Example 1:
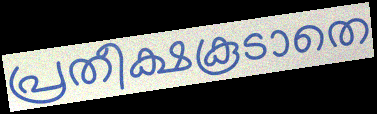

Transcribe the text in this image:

പ്രതീക്ഷകൂടാതെ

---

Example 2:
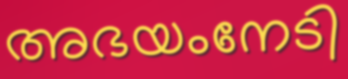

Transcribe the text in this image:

അഭയംനേടി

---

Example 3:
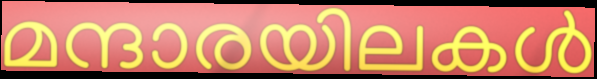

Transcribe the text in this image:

മന്ദാരയിലകൾ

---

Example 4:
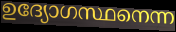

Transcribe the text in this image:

ഉദ്യോഗസ്ഥനെന്ന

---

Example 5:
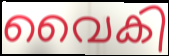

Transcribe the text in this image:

വൈകി